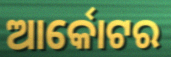
ଆର୍କୋଟର